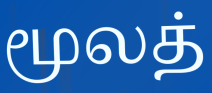
மூலத்